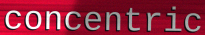
concentric